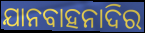
ଯାନବାହନାଦିର